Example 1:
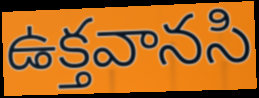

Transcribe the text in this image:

ఉక్తవానసి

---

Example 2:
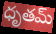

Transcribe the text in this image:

ధృతమ్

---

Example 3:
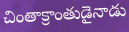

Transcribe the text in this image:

చింతాక్రాంతుడైనాడు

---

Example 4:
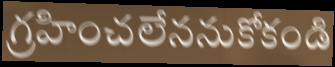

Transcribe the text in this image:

గ్రహించలేననుకోకండి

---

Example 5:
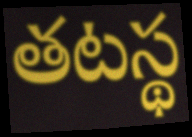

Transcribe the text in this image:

తటస్థ